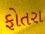
ફોતરા